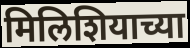
मिलिशियाच्या